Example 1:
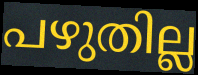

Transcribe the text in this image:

പഴുതില്ല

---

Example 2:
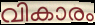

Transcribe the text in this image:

വികാരം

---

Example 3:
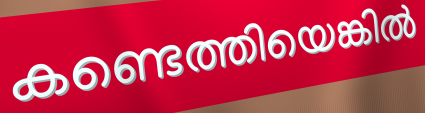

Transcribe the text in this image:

കണ്ടെത്തിയെങ്കിൽ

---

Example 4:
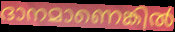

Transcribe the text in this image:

ദാനമാണെങ്കിൽ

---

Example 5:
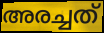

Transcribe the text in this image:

അരച്ചത്